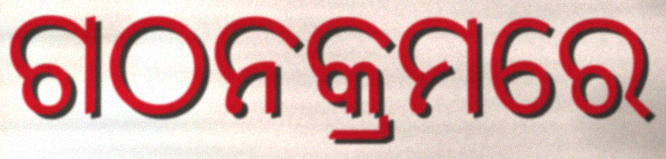
ଗଠନକ୍ରମରେ